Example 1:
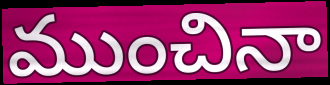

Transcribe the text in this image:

ముంచినా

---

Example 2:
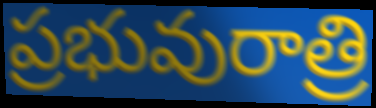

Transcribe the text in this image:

ప్రభువురాత్రి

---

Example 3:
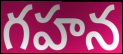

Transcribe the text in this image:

గహన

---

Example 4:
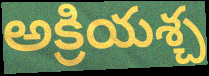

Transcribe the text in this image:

అక్రియశ్చ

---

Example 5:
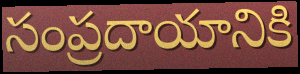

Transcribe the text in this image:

సంప్రదాయానికి